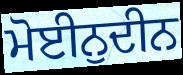
ਮੋਈਨੁਦੀਨ